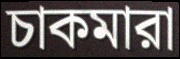
চাকমারা